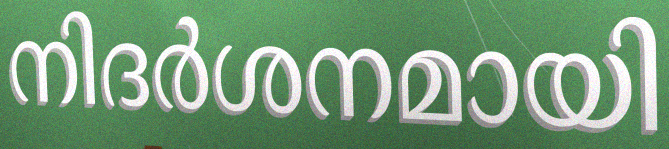
നിദർശനമായി